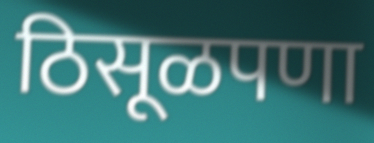
ठिसूळपणा